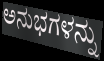
ಅನುಭಗಳನ್ನು